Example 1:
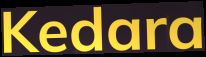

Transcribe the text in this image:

Kedara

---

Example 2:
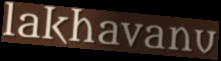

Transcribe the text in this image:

lakhavanu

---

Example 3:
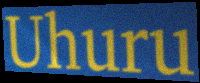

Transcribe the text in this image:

Uhuru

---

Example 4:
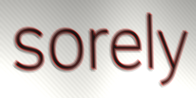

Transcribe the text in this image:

sorely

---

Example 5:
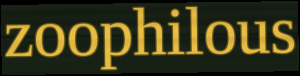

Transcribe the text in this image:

zoophilous